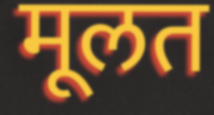
मूलत